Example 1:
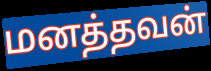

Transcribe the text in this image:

மனத்தவன்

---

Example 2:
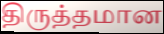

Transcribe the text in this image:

திருத்தமான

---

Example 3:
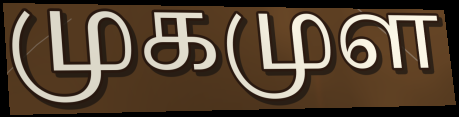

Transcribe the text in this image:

முகமுள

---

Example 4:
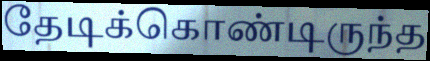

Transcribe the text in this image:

தேடிக்கொண்டிருந்த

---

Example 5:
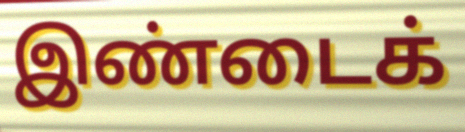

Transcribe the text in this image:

இண்டைக்